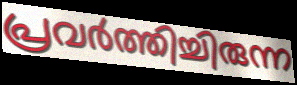
പ്രവർത്തിച്ചിരുന്ന